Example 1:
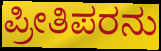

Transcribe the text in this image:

ಪ್ರೀತಿಪರನು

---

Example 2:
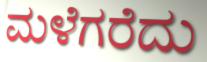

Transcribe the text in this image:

ಮಳೆಗರೆದು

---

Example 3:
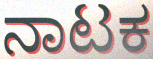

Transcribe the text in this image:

ನಾಟಕ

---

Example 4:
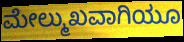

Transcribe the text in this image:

ಮೇಲ್ಮುಖವಾಗಿಯೂ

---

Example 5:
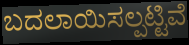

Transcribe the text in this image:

ಬದಲಾಯಿಸಲ್ಪಟ್ಟಿವೆ